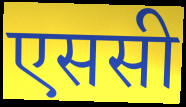
एससी